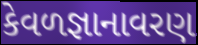
કેવળજ્ઞાનાવરણ